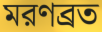
মরণব্রত